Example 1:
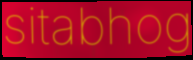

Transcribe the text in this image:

sitabhog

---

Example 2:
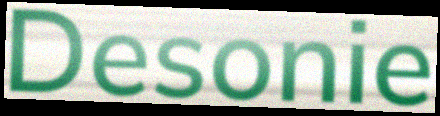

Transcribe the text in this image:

Desonie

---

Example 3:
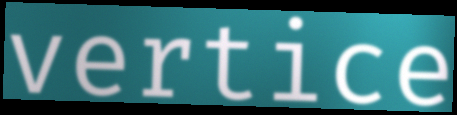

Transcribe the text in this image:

vertice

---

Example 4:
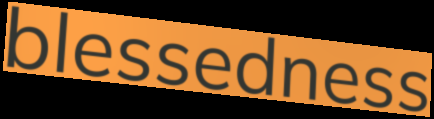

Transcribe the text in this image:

blessedness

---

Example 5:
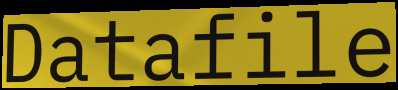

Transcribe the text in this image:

Datafile